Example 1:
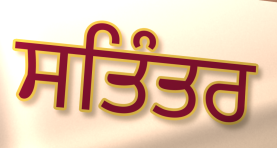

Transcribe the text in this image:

ਸਤਿੰਤਰ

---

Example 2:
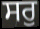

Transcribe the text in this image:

ਸਰੁ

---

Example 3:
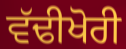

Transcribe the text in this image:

ਵੱਢੀਖੋਰੀ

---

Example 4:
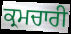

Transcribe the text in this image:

ਕ੍ਰਮਚਾਰੀ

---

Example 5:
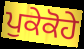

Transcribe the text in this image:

ਪੁਕੇਕੋਹੇ